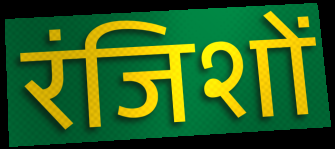
रंजिशों